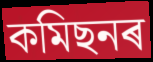
কমিছনৰ